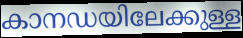
കാനഡയിലേക്കുള്ള